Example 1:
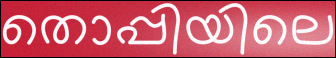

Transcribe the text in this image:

തൊപ്പിയിലെ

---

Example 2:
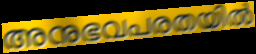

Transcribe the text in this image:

അനുഭവപരതയിൽ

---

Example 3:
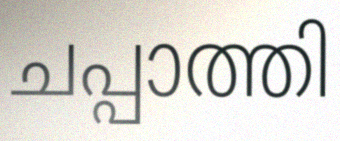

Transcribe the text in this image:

ചപ്പാത്തി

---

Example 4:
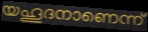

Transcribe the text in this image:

യഹൂദനാണെന്ന്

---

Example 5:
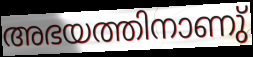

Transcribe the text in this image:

അഭയത്തിനാണു്